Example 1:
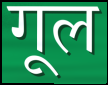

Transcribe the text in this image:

गूल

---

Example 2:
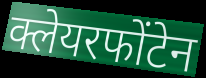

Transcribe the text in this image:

क्लेयरफोंटेन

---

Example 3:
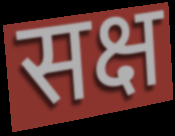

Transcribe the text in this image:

सक्ष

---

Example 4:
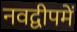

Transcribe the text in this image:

नवद्वीपमें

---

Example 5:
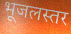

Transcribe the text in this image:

भूजलस्तर